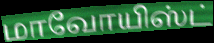
மாவோயிஸ்ட்